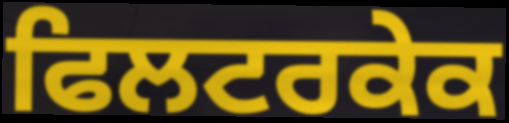
ਫਿਲਟਰਕੇਕ